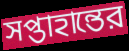
সপ্তাহান্তের